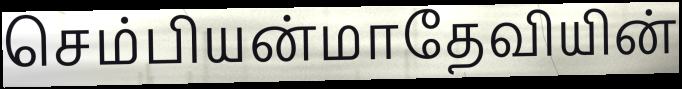
செம்பியன்மாதேவியின்